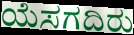
ಯೆಸಗದಿರು